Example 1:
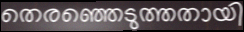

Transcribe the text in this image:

തെരഞ്ഞെടുത്തതായി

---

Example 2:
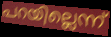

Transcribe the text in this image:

പറയില്ലെന്ന്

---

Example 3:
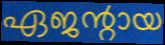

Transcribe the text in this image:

ഏജന്റായ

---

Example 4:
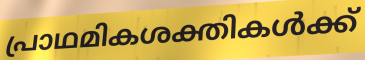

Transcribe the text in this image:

പ്രാഥമികശക്തികൾക്ക്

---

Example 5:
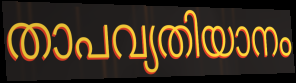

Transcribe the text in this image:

താപവ്യതിയാനം